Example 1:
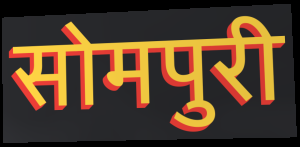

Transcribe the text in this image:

सोमपुरी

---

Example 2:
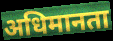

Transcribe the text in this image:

अधिमानता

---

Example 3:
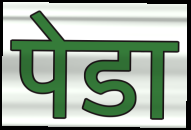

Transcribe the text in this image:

पेडा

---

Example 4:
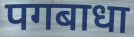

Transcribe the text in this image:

पगबाधा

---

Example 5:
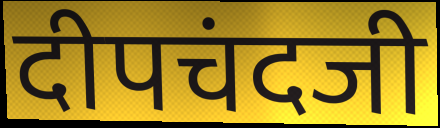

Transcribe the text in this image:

दीपचंदजी